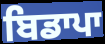
ਬਿਡਾਪਾ